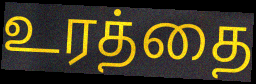
உரத்தை